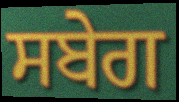
ਸਬੇਗ